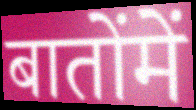
बातोंमें